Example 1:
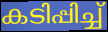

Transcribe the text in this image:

കടിപ്പിച്ച്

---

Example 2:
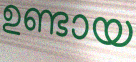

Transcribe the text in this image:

ഉണ്ടായ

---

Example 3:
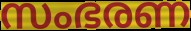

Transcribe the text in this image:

സംഭരണ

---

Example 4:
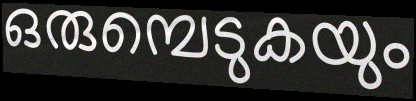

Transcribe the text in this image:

ഒരുമ്പെടുകയും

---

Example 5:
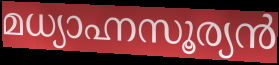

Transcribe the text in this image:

മധ്യാഹ്നസൂര്യൻ